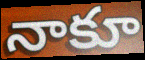
నాకూ